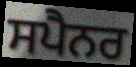
ਸਪੈਨਰ